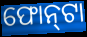
ଫୋନ୍‍ଟା